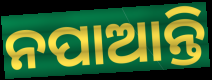
ନପାଆନ୍ତି